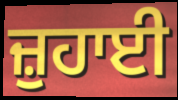
ਜ਼ੁਹਾਈ